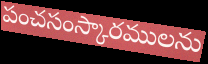
పంచసంస్కారములను